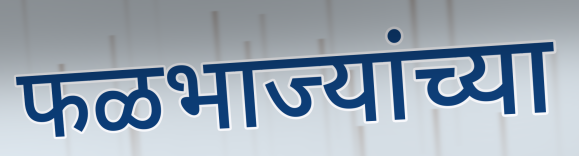
फळभाज्यांच्या